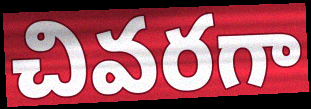
చివరగా